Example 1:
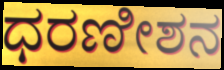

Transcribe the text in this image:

ಧರಣೀಶನ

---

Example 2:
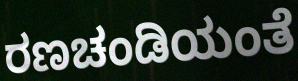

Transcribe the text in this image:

ರಣಚಂಡಿಯಂತೆ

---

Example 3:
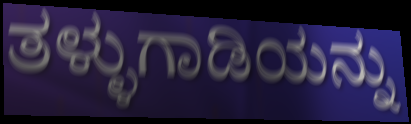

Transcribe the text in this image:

ತಳ್ಳುಗಾಡಿಯನ್ನು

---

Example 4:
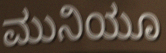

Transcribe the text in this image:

ಮುನಿಯೂ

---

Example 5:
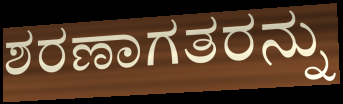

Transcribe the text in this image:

ಶರಣಾಗತರನ್ನು